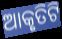
ଆକୃତିଟି